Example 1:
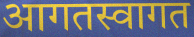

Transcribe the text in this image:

आगतस्वागत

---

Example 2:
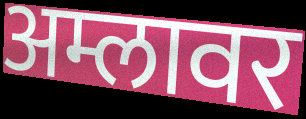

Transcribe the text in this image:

अम्लावर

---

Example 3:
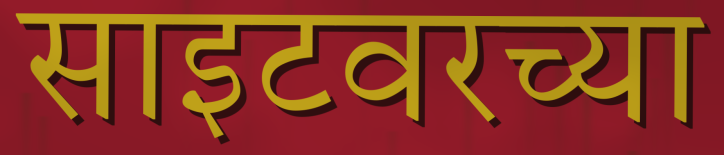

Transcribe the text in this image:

साइटवरच्या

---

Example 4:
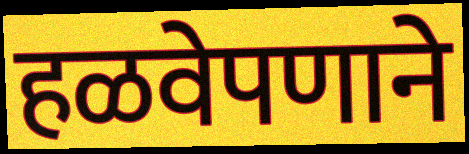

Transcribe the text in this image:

हळवेपणाने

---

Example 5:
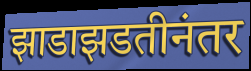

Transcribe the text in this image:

झाडाझडतीनंतर